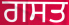
ਗਸਤ